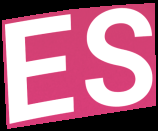
ES